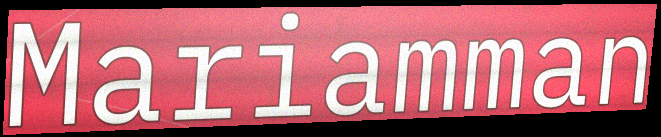
Mariamman